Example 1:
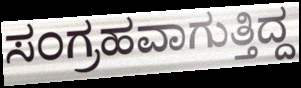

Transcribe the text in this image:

ಸಂಗ್ರಹವಾಗುತ್ತಿದ್ದ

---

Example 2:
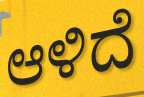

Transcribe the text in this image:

ಆಳಿದೆ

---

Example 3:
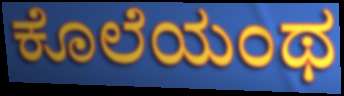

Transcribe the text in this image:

ಕೊಲೆಯಂಥ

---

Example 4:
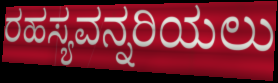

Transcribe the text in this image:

ರಹಸ್ಯವನ್ನರಿಯಲು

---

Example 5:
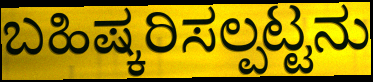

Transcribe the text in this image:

ಬಹಿಷ್ಕರಿಸಲ್ಪಟ್ಟನು